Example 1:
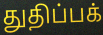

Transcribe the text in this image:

துதிப்பக்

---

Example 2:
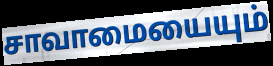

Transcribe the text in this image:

சாவாமையையும்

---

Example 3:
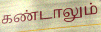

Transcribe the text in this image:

கண்டாலும்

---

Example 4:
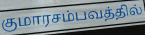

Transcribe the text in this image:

குமாரசம்பவத்தில்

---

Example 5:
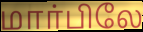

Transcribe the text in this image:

மார்பிலே